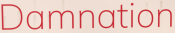
Damnation